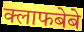
क्लाफबेबे